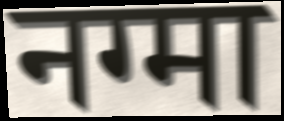
नग्मा